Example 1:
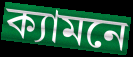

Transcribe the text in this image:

ক্যামনে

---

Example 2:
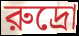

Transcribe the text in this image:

রুদ্রো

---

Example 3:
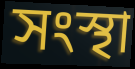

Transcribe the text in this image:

সংস্থা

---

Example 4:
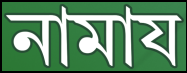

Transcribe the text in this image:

নামায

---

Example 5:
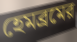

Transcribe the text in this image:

হেমব্রমের